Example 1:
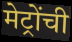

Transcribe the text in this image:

मेट्रोंची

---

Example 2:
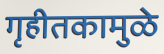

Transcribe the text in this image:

गृहीतकामुळे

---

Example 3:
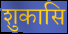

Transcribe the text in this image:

शुकासि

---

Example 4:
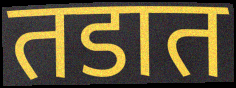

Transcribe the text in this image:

तडात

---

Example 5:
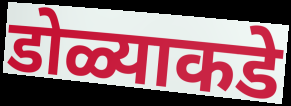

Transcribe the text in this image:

डोळ्याकडे